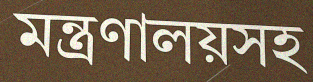
মন্ত্রণালয়সহ